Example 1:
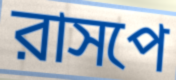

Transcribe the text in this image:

রাসপে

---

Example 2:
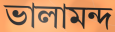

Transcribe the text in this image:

ভালামন্দ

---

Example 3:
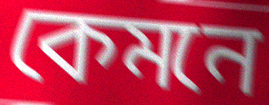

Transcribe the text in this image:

কেমনে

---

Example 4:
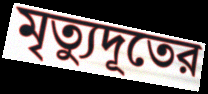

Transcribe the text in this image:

মৃত্যুদূতের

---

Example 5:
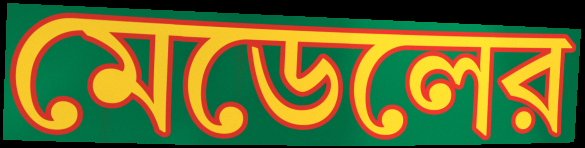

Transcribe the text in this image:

মেডেলের